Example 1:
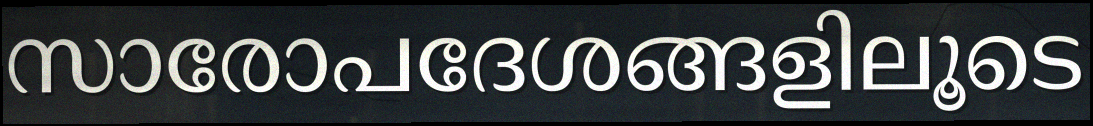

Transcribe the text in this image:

സാരോപദേശങ്ങളിലൂടെ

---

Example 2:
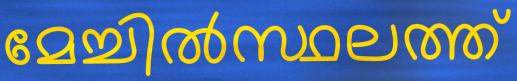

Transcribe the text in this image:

മേച്ചിൽസ്ഥലത്ത്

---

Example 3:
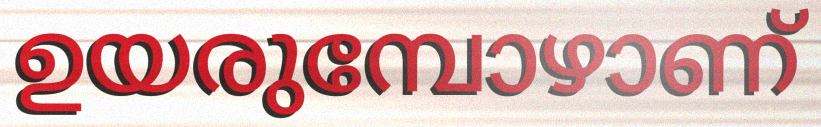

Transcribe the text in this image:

ഉയരുമ്പോഴാണ്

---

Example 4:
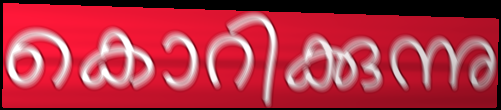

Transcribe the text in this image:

കൊറിക്കുന്നു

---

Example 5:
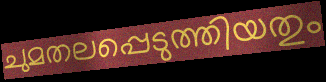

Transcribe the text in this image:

ചുമതലപ്പെടുത്തിയതും